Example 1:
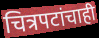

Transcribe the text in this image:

चित्रपटांचाही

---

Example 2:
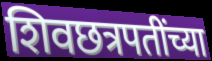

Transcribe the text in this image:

शिवछत्रपतींच्या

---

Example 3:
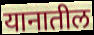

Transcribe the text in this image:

यानातील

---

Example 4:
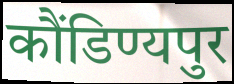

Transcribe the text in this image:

कौंडिण्यपुर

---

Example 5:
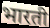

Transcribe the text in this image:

भारती